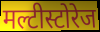
मल्टीस्टोरेज